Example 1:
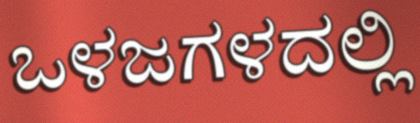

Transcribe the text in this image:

ಒಳಜಗಳದಲ್ಲಿ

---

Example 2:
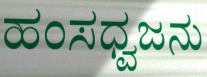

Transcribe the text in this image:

ಹಂಸಧ್ವಜನು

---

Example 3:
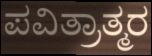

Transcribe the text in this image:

ಪವಿತ್ರಾತ್ಮರ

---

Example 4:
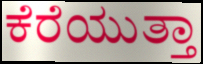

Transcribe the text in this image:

ಕೆರೆಯುತ್ತಾ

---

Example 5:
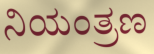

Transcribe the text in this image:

ನಿಯಂತ್ರಣ